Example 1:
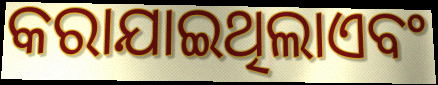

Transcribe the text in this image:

କରାଯାଇଥିଲାଏବଂ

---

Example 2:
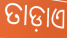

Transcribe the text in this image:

ତାଡ଼ାଏ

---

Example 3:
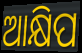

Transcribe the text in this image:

ଆକ୍ଷିପ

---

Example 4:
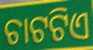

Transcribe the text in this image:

ଚାଟଟିଏ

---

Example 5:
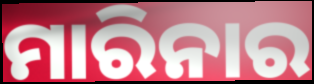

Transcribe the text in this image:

ମାରିନାର